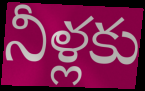
నీళ్లకు